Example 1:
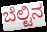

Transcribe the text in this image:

ಬೆಲ್ಟಿನ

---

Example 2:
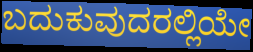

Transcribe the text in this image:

ಬದುಕುವುದರಲ್ಲಿಯೇ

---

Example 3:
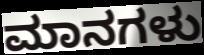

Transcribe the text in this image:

ಮಾನಗಳು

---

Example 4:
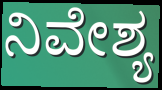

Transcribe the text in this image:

ನಿವೇಶ್ಯ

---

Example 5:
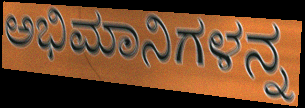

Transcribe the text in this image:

ಅಭಿಮಾನಿಗಳನ್ನ